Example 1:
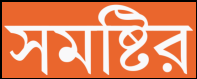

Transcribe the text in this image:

সমষ্টির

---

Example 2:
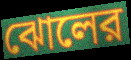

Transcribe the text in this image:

ঝোলের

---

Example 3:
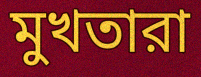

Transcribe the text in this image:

মুখতারা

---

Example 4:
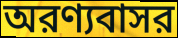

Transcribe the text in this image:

অরণ্যবাসর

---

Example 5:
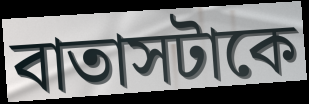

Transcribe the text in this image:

বাতাসটাকে